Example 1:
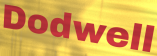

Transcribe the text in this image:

Dodwell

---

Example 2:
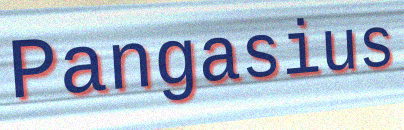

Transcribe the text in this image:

Pangasius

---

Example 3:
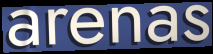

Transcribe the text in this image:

arenas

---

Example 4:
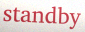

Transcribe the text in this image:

standby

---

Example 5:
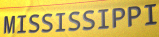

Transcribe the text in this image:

MISSISSIPPI